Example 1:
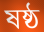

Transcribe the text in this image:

ষষ্ঠ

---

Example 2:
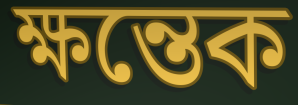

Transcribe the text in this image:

ক্ষন্তেক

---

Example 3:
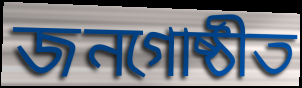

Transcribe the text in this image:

জনগোষ্ঠীত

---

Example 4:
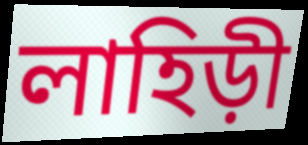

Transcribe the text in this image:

লাহিড়ী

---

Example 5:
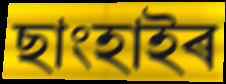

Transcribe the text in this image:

ছাংহাইৰ